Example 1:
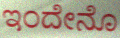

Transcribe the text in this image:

ಇಂದೇನೊ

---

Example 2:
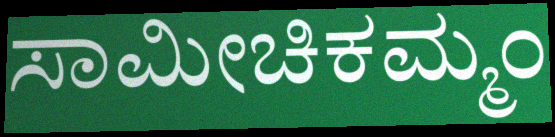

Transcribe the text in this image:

ಸಾಮೀಚಿಕಮ್ಮಂ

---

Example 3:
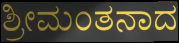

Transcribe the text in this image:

ಶ್ರೀಮಂತನಾದ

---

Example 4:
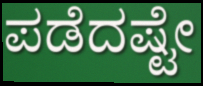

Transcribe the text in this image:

ಪಡೆದಷ್ಟೇ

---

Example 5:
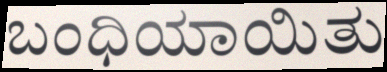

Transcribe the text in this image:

ಬಂಧಿಯಾಯಿತು